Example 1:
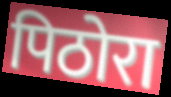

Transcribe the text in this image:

पिठोरा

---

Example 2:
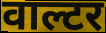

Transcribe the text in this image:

वाल्टर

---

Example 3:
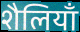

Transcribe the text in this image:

शैलियाँ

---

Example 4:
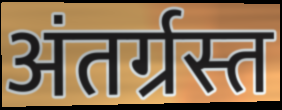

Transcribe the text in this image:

अंतर्ग्रस्त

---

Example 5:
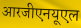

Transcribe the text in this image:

आरजीएनयूएल